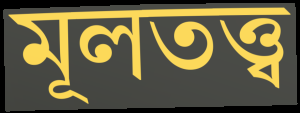
মূলতত্ত্ব